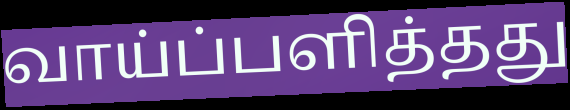
வாய்ப்பளித்தது